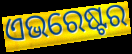
ଏଭରେଷ୍ଟର